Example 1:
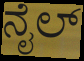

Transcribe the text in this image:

ನೈಲ್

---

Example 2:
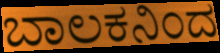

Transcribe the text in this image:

ಬಾಲಕನಿಂದ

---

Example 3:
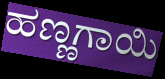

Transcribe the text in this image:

ಹಣ್ಣಗಾಯಿ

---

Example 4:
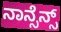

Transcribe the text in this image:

ನಾನ್ಸೆನ್ಸ್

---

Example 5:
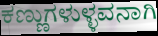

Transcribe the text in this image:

ಕಣ್ಣುಗಳುಳ್ಳವನಾಗಿ